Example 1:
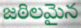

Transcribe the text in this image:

జఠిలమైన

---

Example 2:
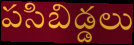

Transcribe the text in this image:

పసిబిడ్డలు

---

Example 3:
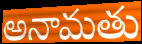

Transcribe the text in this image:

అనామతు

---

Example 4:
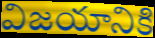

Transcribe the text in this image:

విజయానికి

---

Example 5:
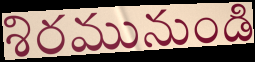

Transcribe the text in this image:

శిరమునుండి